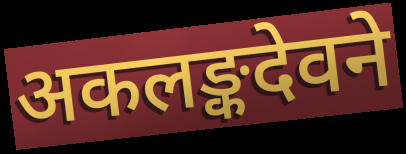
अकलङ्कदेवने